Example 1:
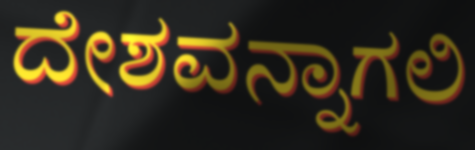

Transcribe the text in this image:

ದೇಶವನ್ನಾಗಲಿ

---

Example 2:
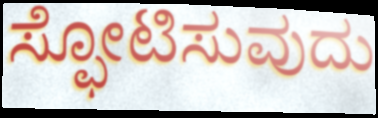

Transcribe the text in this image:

ಸ್ಫೋಟಿಸುವುದು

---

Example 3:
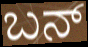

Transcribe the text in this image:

ಬನ್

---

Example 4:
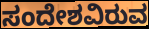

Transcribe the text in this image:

ಸಂದೇಶವಿರುವ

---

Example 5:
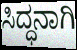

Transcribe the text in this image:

ಸಿದ್ಧನಾಗಿ